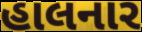
હાલનાર